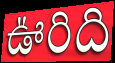
ఊరిది